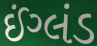
ઈંગ્લંડ